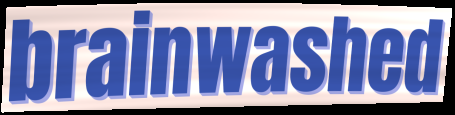
brainwashed